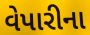
વેપારીના